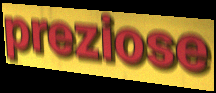
preziose